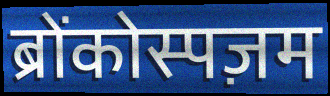
ब्रोंकोस्पज़म